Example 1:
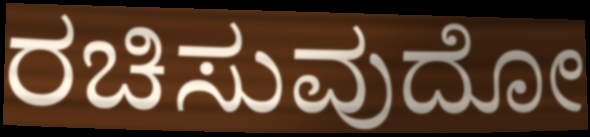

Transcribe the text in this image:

ರಚಿಸುವುದೋ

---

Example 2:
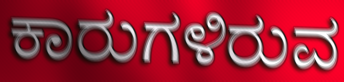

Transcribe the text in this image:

ಕಾರುಗಳಿರುವ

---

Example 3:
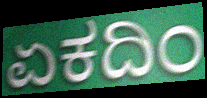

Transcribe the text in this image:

ಏಕದಿಂ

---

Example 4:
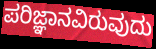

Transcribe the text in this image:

ಪರಿಜ್ಞಾನವಿರುವುದು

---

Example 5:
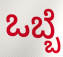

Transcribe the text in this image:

ಒಬ್ಬೆ